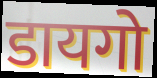
डायगो